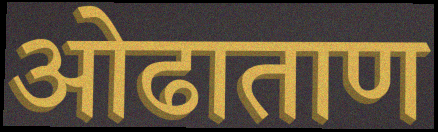
ओढाताण